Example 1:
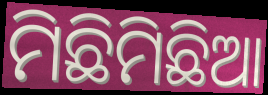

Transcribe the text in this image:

ମିଛିମିଛିଆ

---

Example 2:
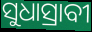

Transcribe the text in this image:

ସୁଧାସ୍ରାବୀ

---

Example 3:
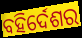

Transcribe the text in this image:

ବହିର୍ଦେଶର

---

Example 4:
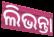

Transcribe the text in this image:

ଲିଭନ୍ତା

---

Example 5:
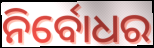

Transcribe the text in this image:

ନିର୍ବୋଧର